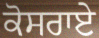
ਕੋਸਰਾਏ